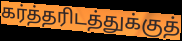
கர்த்தரிடத்துக்குத்